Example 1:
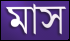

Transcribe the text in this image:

মাস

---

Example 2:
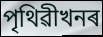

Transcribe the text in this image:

পৃথিৱীখনৰ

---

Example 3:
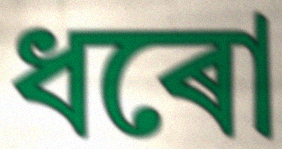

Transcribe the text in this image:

ধৰো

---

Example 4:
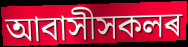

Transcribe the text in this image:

আবাসীসকলৰ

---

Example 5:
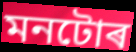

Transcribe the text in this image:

মনটোৰ